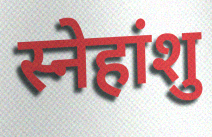
स्नेहांशु